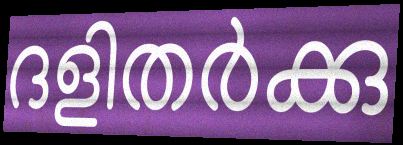
ദളിതർക്കു